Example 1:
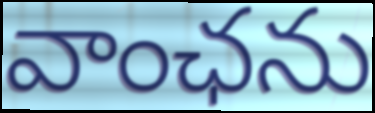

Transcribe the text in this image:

వాంఛను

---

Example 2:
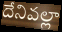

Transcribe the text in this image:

దేనివల్లా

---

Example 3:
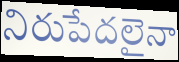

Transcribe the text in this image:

నిరుపేదలైనా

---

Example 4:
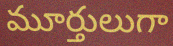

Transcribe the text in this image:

మూర్తులుగా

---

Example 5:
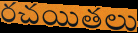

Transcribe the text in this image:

రచయితలు